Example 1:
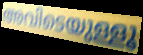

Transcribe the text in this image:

അവിടെയുള്ളൂ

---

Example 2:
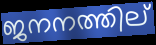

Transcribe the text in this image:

ജനനത്തില്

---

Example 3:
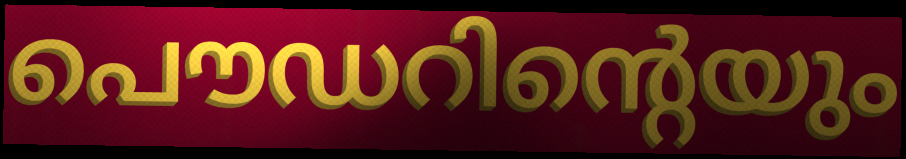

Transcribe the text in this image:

പൌഡറിന്റെയും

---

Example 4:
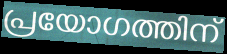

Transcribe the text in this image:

പ്രയോഗത്തിന്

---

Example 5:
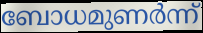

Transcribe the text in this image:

ബോധമുണർന്ന്